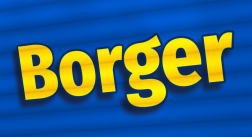
Borger